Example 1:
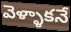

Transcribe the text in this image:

వెళ్ళాకనే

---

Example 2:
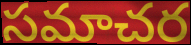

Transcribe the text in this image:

సమాచర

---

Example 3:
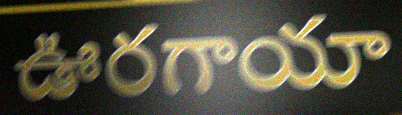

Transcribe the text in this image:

ఊరగాయా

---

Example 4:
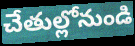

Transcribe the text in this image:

చేతుల్లోనుండి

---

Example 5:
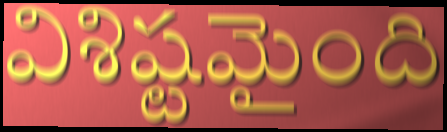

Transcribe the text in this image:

విశిష్టమైంది